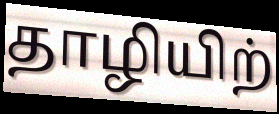
தாழியிற்